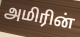
அமிரின்